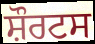
ਸ਼ੌਰਟਸ